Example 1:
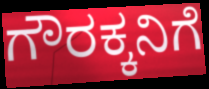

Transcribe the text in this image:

ಗೌರಕ್ಕನಿಗೆ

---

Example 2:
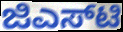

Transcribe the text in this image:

ಜಿಎಸ್‌ಟಿ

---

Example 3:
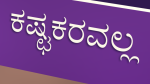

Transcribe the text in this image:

ಕಷ್ಟಕರವಲ್ಲ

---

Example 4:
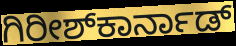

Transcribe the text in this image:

ಗಿರೀಶ್‌ಕಾರ್ನಾಡ್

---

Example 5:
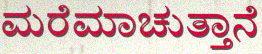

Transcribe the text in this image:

ಮರೆಮಾಚುತ್ತಾನೆ